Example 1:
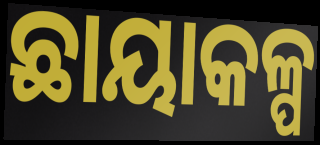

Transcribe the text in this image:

ଛାୟାକଳ୍ପ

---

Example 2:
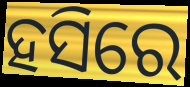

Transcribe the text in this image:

ହସିରେ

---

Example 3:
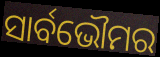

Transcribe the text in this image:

ସାର୍ବଭୌମର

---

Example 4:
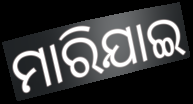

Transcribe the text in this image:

ମାରିଯାଇ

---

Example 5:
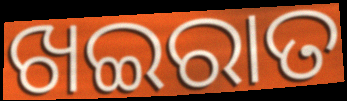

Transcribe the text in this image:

ଖଇରାତ